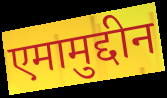
एमामुद्दीन